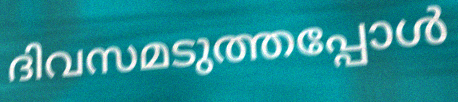
ദിവസമടുത്തപ്പോൾ